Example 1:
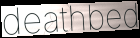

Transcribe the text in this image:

deathbed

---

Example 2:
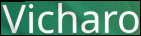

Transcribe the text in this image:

Vicharo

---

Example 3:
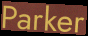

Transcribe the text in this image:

Parker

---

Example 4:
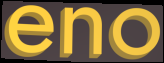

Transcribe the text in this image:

eno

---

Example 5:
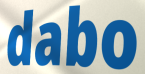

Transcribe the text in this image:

dabo